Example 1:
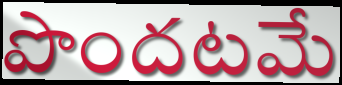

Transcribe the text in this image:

పొందటమే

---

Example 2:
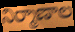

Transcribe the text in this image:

నిర్మాణాల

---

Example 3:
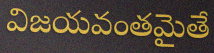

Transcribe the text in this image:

విజయవంతమైతే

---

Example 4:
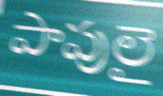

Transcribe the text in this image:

పాపులై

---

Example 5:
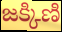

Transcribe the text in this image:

జక్కిణి